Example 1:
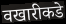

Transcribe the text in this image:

वखारीकडे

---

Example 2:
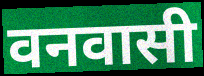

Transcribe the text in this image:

वनवासी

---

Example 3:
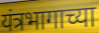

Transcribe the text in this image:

यंत्रभागाच्या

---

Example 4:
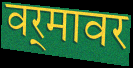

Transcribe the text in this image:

वर्मावर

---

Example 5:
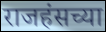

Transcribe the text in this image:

राजहंसच्या